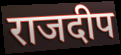
राजदीप